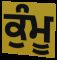
ਕੁੰਮੂ